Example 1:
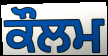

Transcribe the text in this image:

ਕੌਲਮ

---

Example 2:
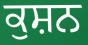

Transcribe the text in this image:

ਕੁਸ਼ਨ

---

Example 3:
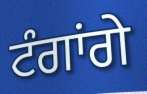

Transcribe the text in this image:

ਟੰਗਾਂਗੇ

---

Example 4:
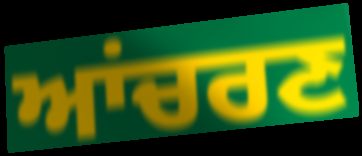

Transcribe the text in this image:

ਆਂਚਰਣ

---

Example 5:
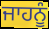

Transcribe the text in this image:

ਜਾਹਨੂੰ